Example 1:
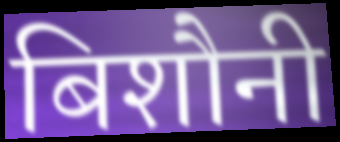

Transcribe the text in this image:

बिशौनी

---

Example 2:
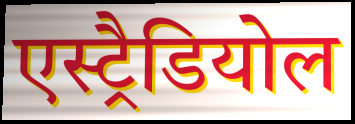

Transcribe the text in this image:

एस्ट्रैडियोल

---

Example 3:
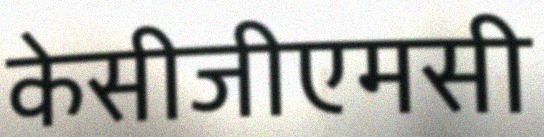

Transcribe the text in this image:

केसीजीएमसी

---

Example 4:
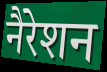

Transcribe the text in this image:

नैरेशन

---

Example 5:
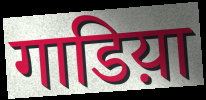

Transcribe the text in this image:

गाडिय़ा